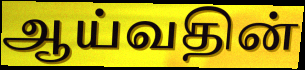
ஆய்வதின்